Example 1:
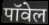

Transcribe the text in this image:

पॉवेल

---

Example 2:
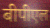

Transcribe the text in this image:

बीपीएल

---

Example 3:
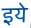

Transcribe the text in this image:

इये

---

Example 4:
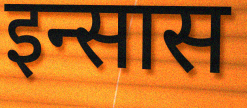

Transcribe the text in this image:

इन्सास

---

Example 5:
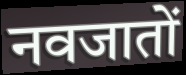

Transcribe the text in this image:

नवजातों